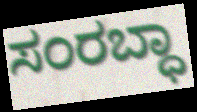
ಸಂರಬ್ಧಾ